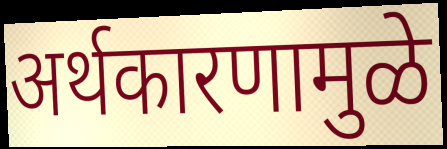
अर्थकारणामुळे